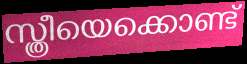
സ്ത്രീയെക്കൊണ്ട്